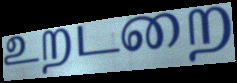
உறடறை